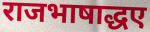
राजभाषाद्धए